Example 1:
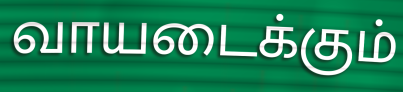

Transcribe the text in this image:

வாயடைக்கும்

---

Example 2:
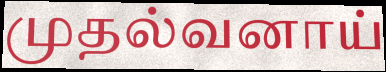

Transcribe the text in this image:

முதல்வனாய்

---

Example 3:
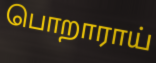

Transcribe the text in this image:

பொறாராய்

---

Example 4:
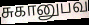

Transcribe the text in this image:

சுகானுபவ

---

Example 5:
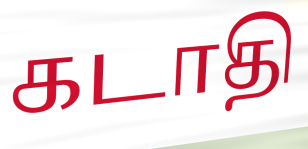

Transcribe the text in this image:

கடாதி